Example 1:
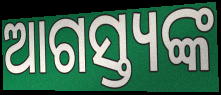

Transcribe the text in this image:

ଆଗସ୍ତ୍ୟଙ୍କ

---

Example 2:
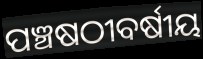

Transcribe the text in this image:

ପଞ୍ଚଷଠୀବର୍ଷୀୟ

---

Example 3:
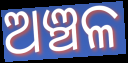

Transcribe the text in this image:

ଅଞ୍ଚଳ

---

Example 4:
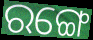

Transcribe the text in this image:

ରଙ୍ଗେ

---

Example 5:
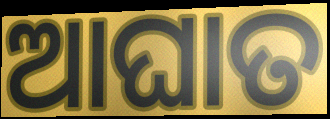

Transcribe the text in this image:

ଆଘାତ